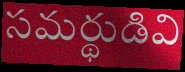
సమర్థుడివి